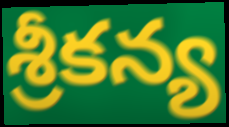
శ్రీకన్య